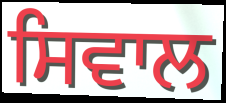
ਸਿਵਾਲ